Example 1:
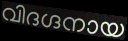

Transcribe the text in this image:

വിദഗ്ദനായ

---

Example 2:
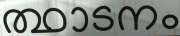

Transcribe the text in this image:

ത്ഥാടനം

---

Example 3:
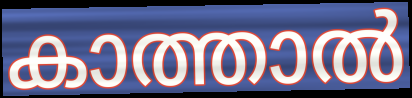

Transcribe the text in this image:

കാത്താൽ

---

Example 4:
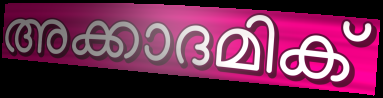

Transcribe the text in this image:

അക്കാദമിക്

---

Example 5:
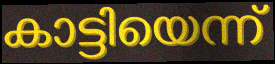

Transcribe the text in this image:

കാട്ടിയെന്ന്